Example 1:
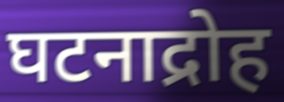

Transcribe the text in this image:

घटनाद्रोह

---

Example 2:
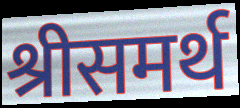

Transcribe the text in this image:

श्रीसमर्थ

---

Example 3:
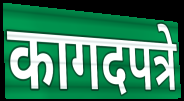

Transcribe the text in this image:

कागदपत्रे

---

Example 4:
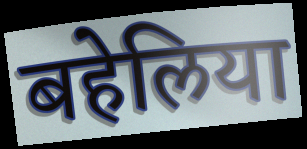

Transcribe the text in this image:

बहेलिया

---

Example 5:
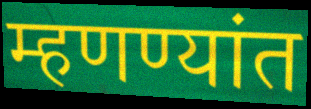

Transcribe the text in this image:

म्हणण्यांत